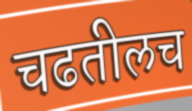
चढतीलच